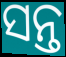
ସନ୍ତ